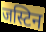
जस्टिन